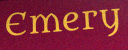
Emery